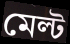
মেল্ট